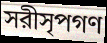
সরীসৃপগণ